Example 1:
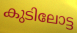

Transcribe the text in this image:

കുടിലോട്ട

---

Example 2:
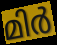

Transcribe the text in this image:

മിർ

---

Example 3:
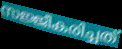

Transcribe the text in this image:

സജ്ജീകരിച്ചത്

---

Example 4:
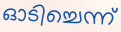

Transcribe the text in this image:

ഓടിച്ചെന്ന്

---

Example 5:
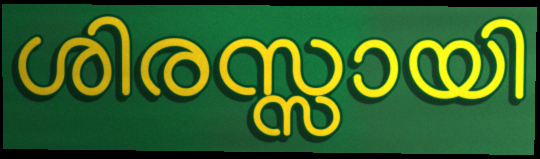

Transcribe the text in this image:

ശിരസ്സായി